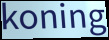
koning